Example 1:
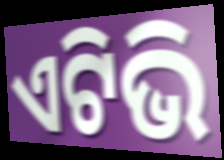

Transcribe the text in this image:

ଏଟିଭି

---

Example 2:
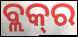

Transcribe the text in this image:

ବ୍ଲକ୍‍ର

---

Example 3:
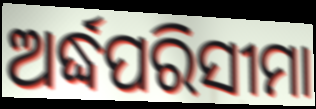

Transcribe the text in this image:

ଅର୍ଦ୍ଧପରିସୀମା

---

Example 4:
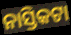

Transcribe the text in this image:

ନାସ୍ତିକଟା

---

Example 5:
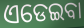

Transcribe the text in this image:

ଏଡେଇବା